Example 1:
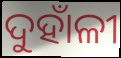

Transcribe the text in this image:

ଦୁହାଁଳୀ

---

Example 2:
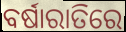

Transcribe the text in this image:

ବର୍ଷାରାତିରେ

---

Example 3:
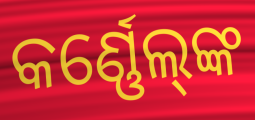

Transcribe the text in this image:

କର୍ଣ୍ଣେଲ୍‌ଙ୍କ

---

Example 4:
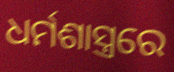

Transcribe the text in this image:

ଧର୍ମଶାସ୍ତ୍ରରେ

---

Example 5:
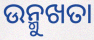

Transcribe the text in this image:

ଉନ୍ମୁଖତା